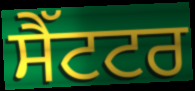
ਸੈੱਟਟਰ